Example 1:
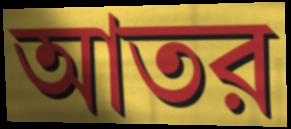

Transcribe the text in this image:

আতর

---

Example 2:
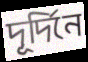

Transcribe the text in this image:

দূর্দিনে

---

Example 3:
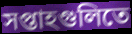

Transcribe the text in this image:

সপ্তাহগুলিতে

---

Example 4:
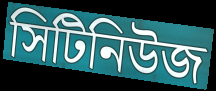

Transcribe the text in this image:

সিটিনিউজ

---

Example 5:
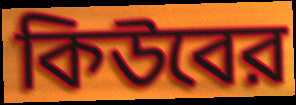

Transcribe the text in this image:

কিউবের